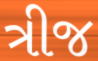
ત્રીજ